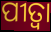
ପୀତ୍ବା